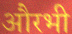
औरभी